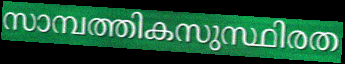
സാമ്പത്തികസുസ്ഥിരത